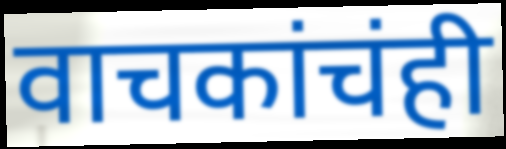
वाचकांचंही